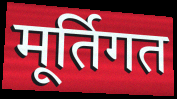
मूर्तिगत